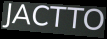
JACTTO